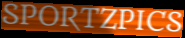
SPORTZPICS